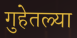
गुहेतल्या